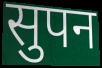
सुपन